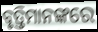
ବୃତ୍ତିମାନଙ୍କରେ